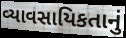
વ્યાવસાયિકતાનું